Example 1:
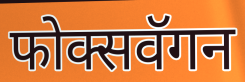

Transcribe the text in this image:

फोक्सवॅगन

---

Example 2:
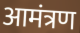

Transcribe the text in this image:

आमंत्रण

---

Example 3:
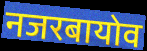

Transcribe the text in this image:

नजरबायोव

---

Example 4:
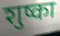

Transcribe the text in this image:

शुष्का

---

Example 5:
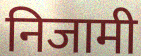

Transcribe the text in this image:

निजामी